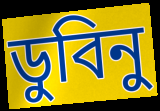
ডুবিনু